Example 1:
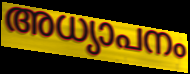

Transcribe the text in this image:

അധ്യാപനം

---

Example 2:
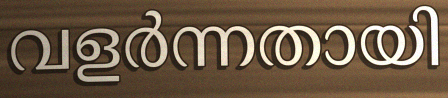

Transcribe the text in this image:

വളർന്നതായി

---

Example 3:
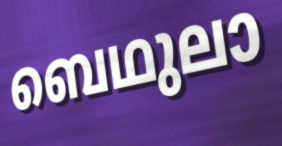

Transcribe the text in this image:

ബെഥുലാ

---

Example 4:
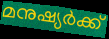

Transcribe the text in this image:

മനുഷ്യർക്ക്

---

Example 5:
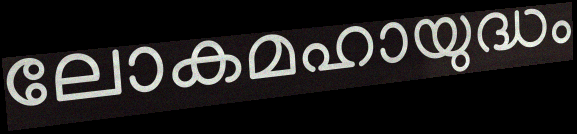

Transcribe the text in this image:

ലോകമഹായുദ്ധം